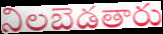
నిలబెడతారు